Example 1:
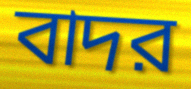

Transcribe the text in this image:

বাদর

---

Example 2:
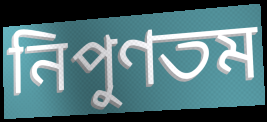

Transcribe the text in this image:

নিপুণতম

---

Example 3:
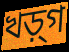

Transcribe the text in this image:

খড়্‌গ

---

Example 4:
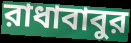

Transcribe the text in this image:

রাধাবাবুর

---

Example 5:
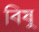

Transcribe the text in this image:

বিষু